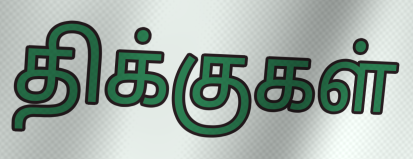
திக்குகள்